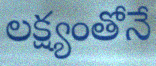
లక్ష్యంతోనే